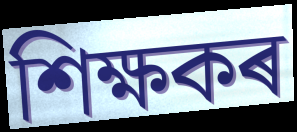
শিক্ষকৰ